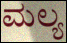
ಮಲ್ಯ